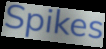
Spikes